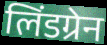
लिंडग्रेन